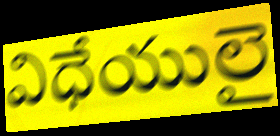
విధేయులై